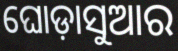
ଘୋଡ଼ାସୁଆର